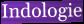
Indologie